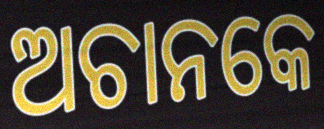
ଅଚାନକେ